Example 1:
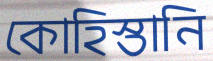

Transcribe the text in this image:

কোহিস্তানি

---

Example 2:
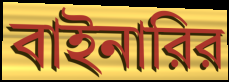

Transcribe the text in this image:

বাইনারির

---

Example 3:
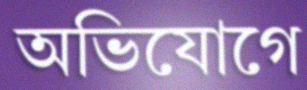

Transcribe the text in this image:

অভিযোগে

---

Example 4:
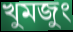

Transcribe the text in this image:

খুমজুং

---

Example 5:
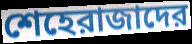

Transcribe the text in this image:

শেহেরাজাদের